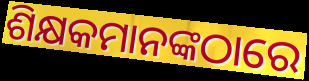
ଶିକ୍ଷକମାନଙ୍କଠାରେ